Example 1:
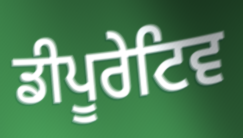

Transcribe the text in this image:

ਡੀਪੂਰੇਟਿਵ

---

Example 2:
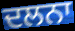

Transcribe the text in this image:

ਦਲਨਾ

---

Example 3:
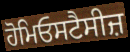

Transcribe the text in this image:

ਹੋਮਿਓਸਟੈਸੀਜ਼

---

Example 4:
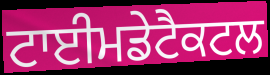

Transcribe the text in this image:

ਟਾਈਮਡੇਟੈਕਟਲ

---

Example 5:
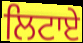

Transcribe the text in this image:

ਲਿਟਾਏ